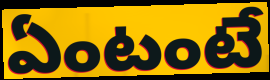
ఏంటంటే